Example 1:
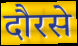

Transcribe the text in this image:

दौरसे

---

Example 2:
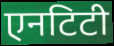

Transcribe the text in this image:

एनटिटी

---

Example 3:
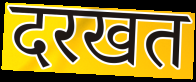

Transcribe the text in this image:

दरखत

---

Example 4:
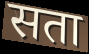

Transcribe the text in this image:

सता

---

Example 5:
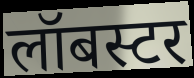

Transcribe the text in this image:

लॉबस्टर